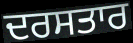
ਦਰਸਤਾਰ